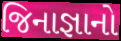
જિનાજ્ઞાનો